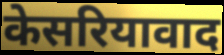
केसरियावाद